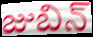
జుబిన్